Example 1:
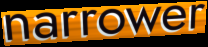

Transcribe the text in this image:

narrower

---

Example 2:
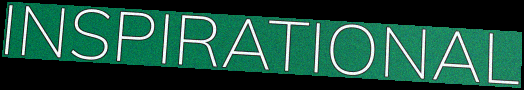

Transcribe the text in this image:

INSPIRATIONAL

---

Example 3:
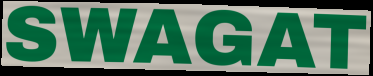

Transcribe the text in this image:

SWAGAT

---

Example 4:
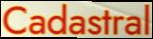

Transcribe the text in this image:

Cadastral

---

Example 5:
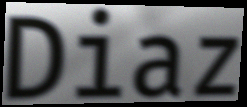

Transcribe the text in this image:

Diaz